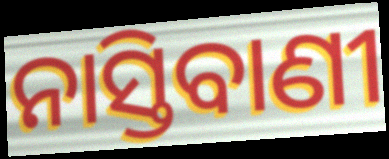
ନାସ୍ତିବାଣୀ